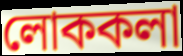
লোককলা